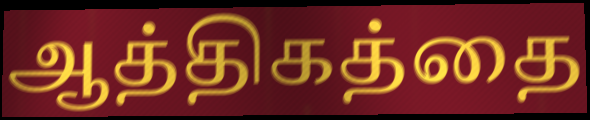
ஆத்திகத்தை